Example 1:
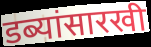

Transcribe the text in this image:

डब्यांसारखी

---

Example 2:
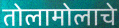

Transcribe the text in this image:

तोलामोलाचे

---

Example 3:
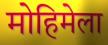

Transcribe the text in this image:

मोहिमेला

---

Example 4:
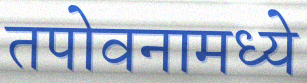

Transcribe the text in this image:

तपोवनामध्ये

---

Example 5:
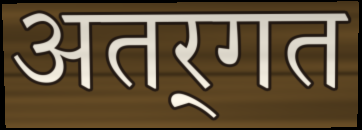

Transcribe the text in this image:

अतर्गत